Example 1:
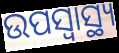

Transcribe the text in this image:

ଉପସ୍ୱାସ୍ଥ୍ୟ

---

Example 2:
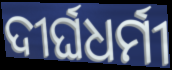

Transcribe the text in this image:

ଦୀର୍ଘଧର୍ମୀ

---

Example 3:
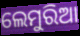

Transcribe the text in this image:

ଲେମୁରିଆ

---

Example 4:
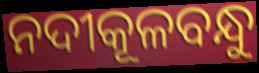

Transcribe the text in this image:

ନଦୀକୂଳବନ୍ଧୁ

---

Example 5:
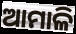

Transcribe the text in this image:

ଆମାଳି